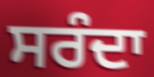
ਸਰੰਦਾ